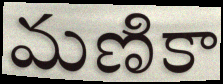
మణికా